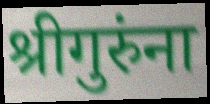
श्रीगुरुंना